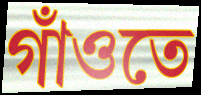
গাঁওতে